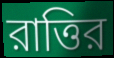
রাত্তির